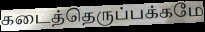
கடைத்தெருப்பக்கமே